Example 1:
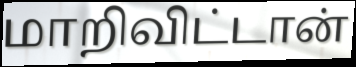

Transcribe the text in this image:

மாறிவிட்டான்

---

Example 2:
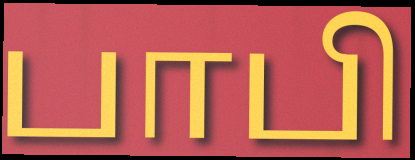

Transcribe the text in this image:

பாபி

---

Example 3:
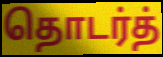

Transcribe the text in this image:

தொடர்த்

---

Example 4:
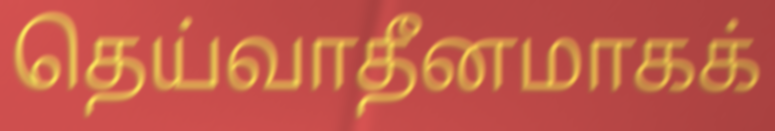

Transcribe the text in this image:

தெய்வாதீனமாகக்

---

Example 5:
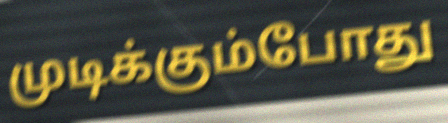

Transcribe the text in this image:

முடிக்கும்போது